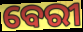
ବେରୀ